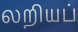
லறியப்